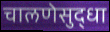
चालणेसुद्धा